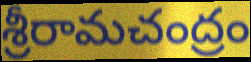
శ్రీరామచంద్రం